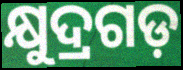
କ୍ଷୁଦ୍ରଗଡ଼